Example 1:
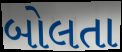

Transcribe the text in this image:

બોલતા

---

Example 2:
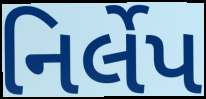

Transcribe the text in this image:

નિર્લેપ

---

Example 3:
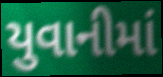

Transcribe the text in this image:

યુવાનીમાં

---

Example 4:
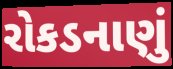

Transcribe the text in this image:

રોકડનાણું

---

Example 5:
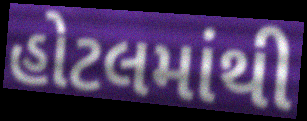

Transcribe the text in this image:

હોટલમાંથી